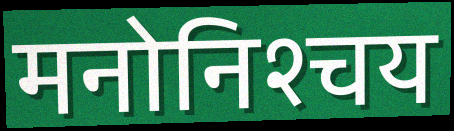
मनोनिश्चय